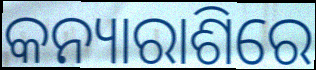
କନ୍ୟାରାଶିରେ